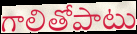
గాలితోపాటు